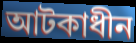
আটকাধীন